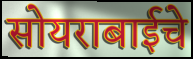
सोयराबाईचे